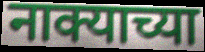
नाक्याच्या